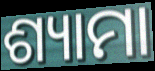
ଶ୍ୟାମା